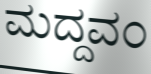
ಮದ್ದವಂ